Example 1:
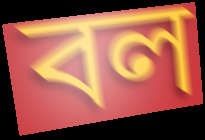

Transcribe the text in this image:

বল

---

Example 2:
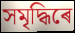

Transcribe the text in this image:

সমৃদ্ধিৰে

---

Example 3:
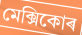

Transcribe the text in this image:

মেক্সিকোৰ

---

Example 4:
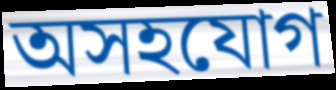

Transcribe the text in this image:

অসহযোগ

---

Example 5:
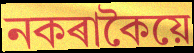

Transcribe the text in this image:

নকৰাকৈয়ে